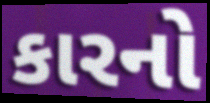
કારનો